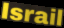
Israil